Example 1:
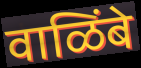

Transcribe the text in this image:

वाळिंबे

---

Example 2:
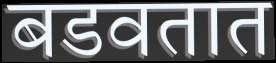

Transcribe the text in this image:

बडवतात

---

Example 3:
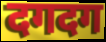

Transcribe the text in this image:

दगदग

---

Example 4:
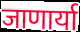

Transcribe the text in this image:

जाणार्या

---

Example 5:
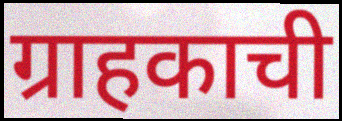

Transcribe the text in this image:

ग्राहकाची